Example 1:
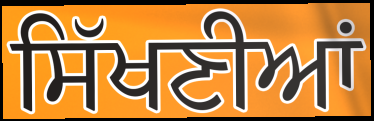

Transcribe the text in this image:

ਸਿੱਖਣੀਆਂ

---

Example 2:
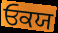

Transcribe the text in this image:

ਓਕਯ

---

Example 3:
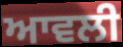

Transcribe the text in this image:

ਆਵਲੀ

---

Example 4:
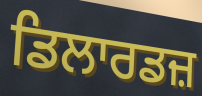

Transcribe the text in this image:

ਡਿਲਾਰਡਜ਼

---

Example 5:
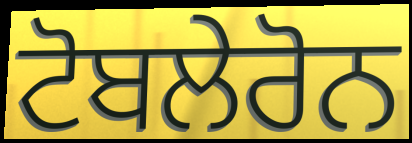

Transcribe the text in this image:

ਟੋਬਲੇਰੋਨ